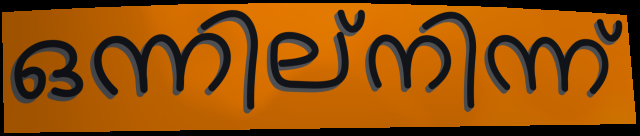
ഒന്നില്നിന്ന്